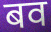
बव